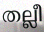
തല്ലീ